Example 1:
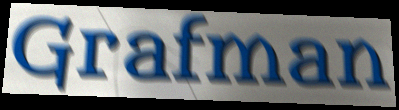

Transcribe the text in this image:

Grafman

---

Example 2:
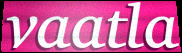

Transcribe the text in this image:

vaatla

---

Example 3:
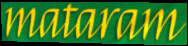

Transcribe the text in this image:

mataram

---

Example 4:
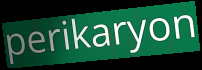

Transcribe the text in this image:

perikaryon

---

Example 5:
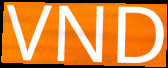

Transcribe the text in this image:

VND